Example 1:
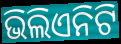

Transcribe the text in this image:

ଭିଲିଏନିଟି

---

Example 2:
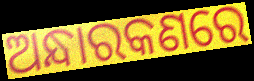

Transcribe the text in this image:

ଅନ୍ଧାରକଣରେ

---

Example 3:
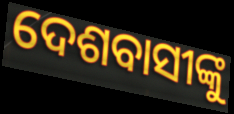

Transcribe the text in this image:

ଦେଶବାସୀଙ୍କୁ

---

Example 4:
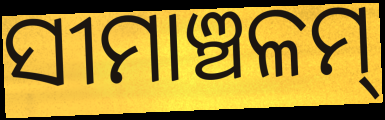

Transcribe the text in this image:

ସୀମାଞ୍ଚଳମ୍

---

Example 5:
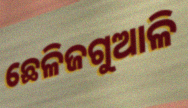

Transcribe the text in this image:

ଛେଳିଜଗୁଆଳି